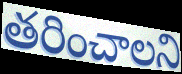
తరించాలని